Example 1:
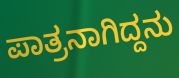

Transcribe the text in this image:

ಪಾತ್ರನಾಗಿದ್ದನು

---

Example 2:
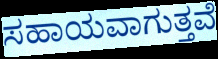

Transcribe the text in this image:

ಸಹಾಯವಾಗುತ್ತವೆ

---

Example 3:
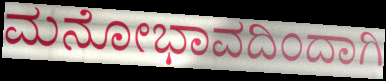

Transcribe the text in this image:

ಮನೋಭಾವದಿಂದಾಗಿ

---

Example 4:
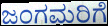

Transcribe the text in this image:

ಜಂಗಮರಿಗೆ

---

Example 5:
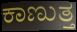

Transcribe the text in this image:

ಕಾಣುತ್ತ